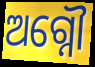
ଅଗ୍ନୌ